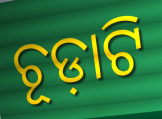
ଚୂଡ଼ାଟି